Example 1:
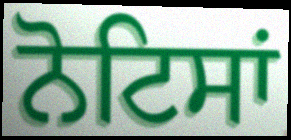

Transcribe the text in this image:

ਨੋਟਿਸਾਂ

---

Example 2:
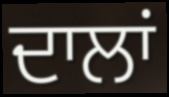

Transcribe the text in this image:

ਦਾਲਾਂ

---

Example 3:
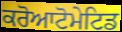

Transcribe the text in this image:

ਕਰੋਆਟੋਮੇਟਿਡ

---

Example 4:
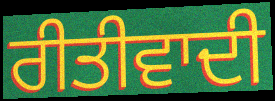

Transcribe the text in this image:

ਰੀਤੀਵਾਦੀ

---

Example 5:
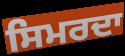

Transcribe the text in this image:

ਸਿਮਰਦਾ